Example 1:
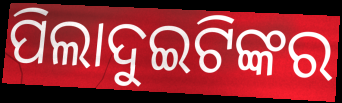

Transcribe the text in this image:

ପିଲାଦୁଇଟିଙ୍କର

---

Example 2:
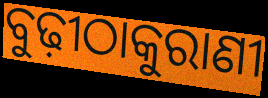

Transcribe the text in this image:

ବୁଢ଼ୀଠାକୁରାଣୀ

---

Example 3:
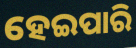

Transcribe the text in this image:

ହେଇପାରି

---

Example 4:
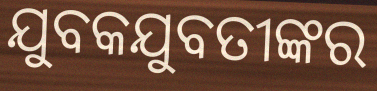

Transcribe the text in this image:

ଯୁବକଯୁବତୀଙ୍କର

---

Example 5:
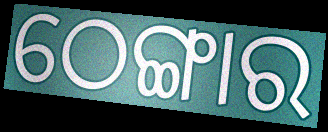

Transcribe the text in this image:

ଠେଙ୍ଗାର